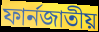
ফার্নজাতীয়